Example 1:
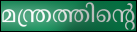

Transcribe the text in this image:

മന്ത്രത്തിന്റെ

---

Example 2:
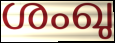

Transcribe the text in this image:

ശംഖു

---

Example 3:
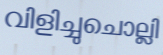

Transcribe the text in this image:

വിളിച്ചുചൊല്ലി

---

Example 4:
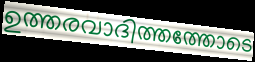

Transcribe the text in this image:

ഉത്തരവാദിത്തത്തോടെ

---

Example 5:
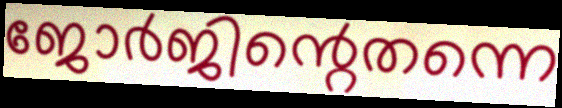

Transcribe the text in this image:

ജോർജിന്റെതന്നെ